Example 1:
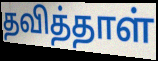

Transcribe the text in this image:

தவித்தாள்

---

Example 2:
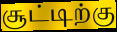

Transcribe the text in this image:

சூட்டிற்கு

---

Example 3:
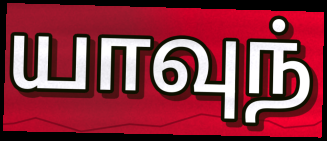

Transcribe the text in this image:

யாவுந்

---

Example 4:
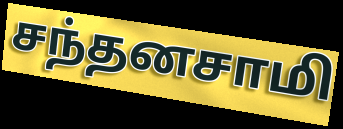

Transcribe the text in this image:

சந்தனசாமி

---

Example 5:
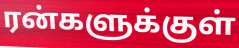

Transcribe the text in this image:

ரன்களுக்குள்